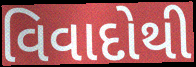
વિવાદોથી